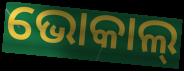
ଭୋକାଲ୍